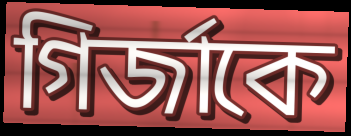
গির্জাকে